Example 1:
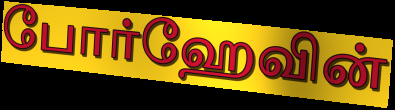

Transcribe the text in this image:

போர்ஹேவின்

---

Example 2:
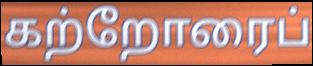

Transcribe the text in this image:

கற்றோரைப்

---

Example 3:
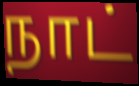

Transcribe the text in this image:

நாட்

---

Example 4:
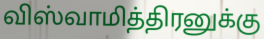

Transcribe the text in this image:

விஸ்வாமித்திரனுக்கு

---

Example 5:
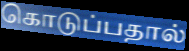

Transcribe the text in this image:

கொடுப்பதால்